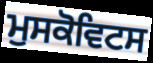
ਮੁਸਕੋਵਿਟਸ